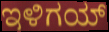
ಇಳಿಗಯ್